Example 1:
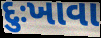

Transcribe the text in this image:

દુઃખાવા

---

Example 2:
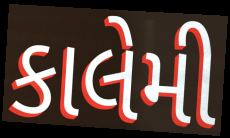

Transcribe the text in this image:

કાલેમી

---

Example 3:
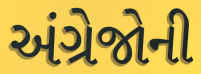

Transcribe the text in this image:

અંગ્રેજોની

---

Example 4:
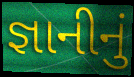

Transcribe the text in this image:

જ્ઞાનીનું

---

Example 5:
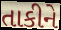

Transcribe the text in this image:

તાકીને